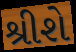
શ્રીશે